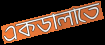
একডালাতে